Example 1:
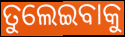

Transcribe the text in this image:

ତୁଲେଇବାକୁ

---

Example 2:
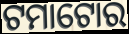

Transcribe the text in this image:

ଟମାଟୋର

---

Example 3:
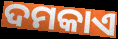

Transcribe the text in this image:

ଦମକାଏ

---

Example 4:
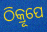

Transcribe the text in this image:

ଠିକ୍ରୂପେ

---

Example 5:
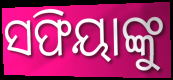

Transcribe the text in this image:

ସଫିୟାଙ୍କୁ